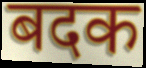
बदक